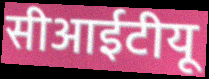
सीआईटीयू